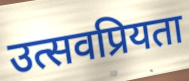
उत्सवप्रियता